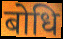
बोधि